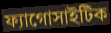
ফ্যাগোসাইটিক